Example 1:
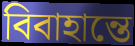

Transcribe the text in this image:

বিবাহান্তে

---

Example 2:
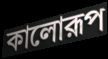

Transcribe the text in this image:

কালোরূপ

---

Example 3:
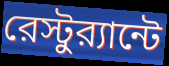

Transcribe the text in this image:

রেস্টুর‍্যান্টে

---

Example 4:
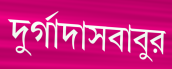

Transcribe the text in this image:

দুর্গাদাসবাবুর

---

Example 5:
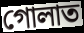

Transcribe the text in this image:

গোলাত